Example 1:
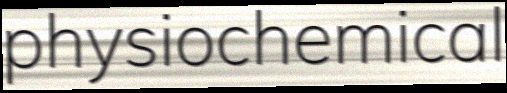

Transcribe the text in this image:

physiochemical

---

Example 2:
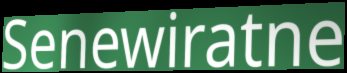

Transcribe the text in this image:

Senewiratne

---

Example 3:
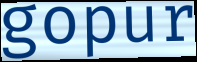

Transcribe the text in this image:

gopur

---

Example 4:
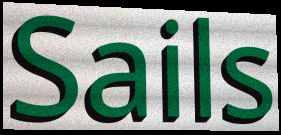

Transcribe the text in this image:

Sails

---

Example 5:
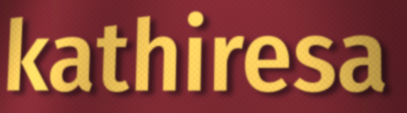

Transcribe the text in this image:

kathiresa